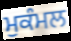
ਮੁਕੰਮਲ